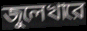
জুলেখারে